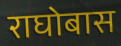
राघोबास